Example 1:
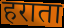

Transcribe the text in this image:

हराता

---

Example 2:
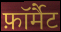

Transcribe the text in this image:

फ़ॉर्मैट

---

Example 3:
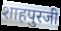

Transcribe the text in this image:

शाहपुरजी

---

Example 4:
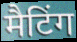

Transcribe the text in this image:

मैटिंग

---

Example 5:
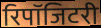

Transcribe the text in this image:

रिपॉजिटरी